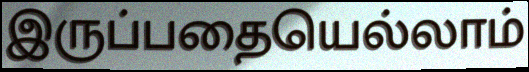
இருப்பதையெல்லாம்